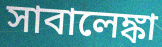
সাবালেঙ্কা